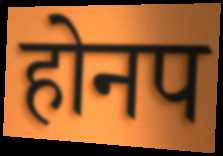
होनप